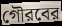
গৌরবের